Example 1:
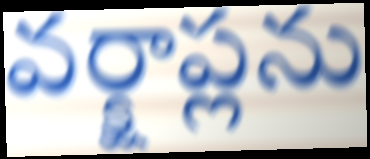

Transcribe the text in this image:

వర్క్షాప్లను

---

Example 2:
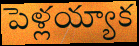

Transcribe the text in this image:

పెళ్లయ్యాక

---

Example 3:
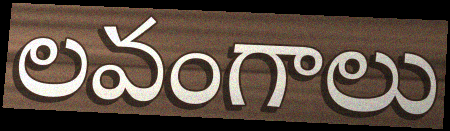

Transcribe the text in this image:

లవంగాలు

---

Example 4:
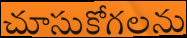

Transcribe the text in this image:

చూసుకోగలను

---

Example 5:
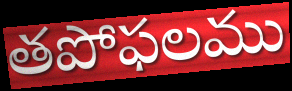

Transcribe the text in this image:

తపోఫలము